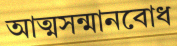
আত্মসন্মানবোধ